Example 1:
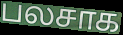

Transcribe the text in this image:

பலசாக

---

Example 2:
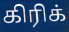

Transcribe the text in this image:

கிரிக்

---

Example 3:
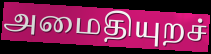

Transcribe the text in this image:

அமைதியுறச்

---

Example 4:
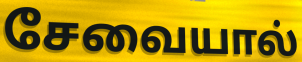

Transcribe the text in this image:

சேவையால்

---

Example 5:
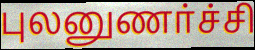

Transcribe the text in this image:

புலனுணர்ச்சி